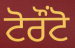
ਟੋਰੌੰਟੋ